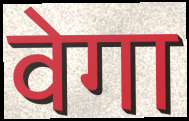
वेगा